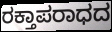
ರಕ್ತಾಪರಾಧದ